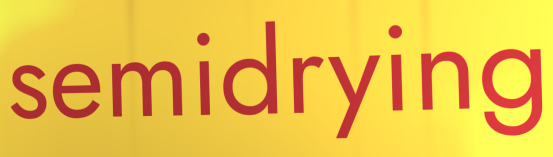
semidrying